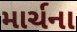
માર્ચના